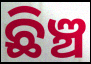
ଛିଞ୍ଚ